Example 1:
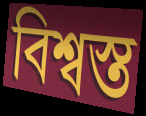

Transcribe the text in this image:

বিশ্বস্ত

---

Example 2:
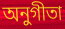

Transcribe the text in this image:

অনুগীতা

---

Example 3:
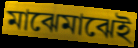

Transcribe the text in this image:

মাঝেমাঝেই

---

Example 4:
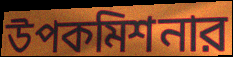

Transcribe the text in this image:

উপকমিশনার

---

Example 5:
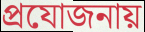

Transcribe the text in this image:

প্রযোজনায়